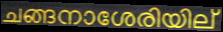
ചങ്ങനാശേരിയില്